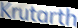
Krutarth